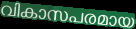
വികാസപരമായ